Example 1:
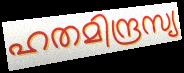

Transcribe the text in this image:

ഹതമിന്ദ്രസ്യ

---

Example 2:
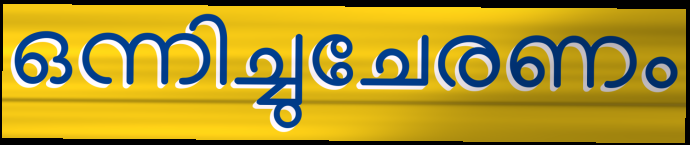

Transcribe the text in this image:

ഒന്നിച്ചുചേരണം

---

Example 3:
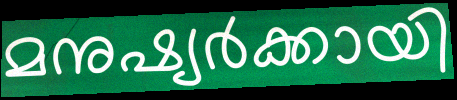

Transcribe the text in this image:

മനുഷ്യർക്കായി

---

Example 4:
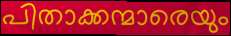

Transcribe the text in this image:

പിതാക്കന്മാരെയും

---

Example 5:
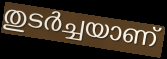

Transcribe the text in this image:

തുടർച്ചയാണ്